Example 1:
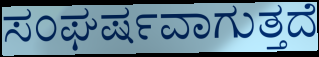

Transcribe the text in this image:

ಸಂಘರ್ಷವಾಗುತ್ತದೆ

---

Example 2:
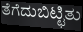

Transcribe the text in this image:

ತೆಗೆದುಬಿಟ್ಟಿತು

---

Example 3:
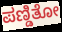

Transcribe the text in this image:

ಪಣ್ಡಿತೋ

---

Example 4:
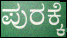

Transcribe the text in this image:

ಪುರಕ್ಕೆ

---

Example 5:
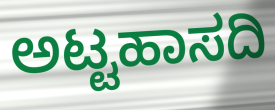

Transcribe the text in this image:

ಅಟ್ಟಹಾಸದಿ